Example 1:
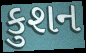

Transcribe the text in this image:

કુશન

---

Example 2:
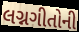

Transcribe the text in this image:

લગ્નગીતોની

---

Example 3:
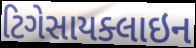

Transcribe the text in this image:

ટિગેસાયક્લાઇન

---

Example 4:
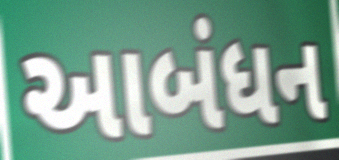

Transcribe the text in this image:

આબંધન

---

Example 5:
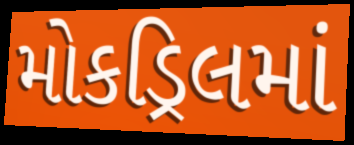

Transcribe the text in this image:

મોકડ્રિલમાં